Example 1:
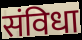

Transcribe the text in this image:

संविधा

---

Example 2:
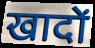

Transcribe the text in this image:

खादों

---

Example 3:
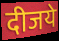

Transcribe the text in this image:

दीजये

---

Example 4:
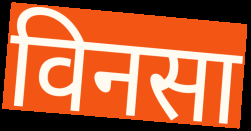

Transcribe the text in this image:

विनसा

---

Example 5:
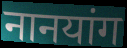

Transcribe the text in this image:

नानयांग